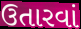
ઉતારવાં